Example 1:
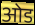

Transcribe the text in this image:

ओड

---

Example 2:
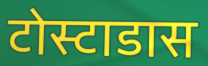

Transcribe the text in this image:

टोस्टाडास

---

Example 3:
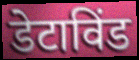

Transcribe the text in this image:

डेटाविंड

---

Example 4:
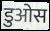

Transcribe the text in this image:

डुओस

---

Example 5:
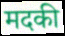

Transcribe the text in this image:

मदकी